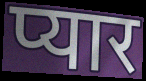
प्यार